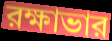
রক্ষাভার